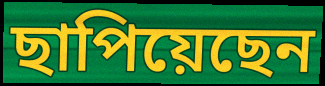
ছাপিয়েছেন